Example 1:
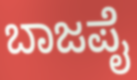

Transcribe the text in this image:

ಬಾಜಪೈ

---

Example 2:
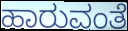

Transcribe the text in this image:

ಹಾರುವಂತೆ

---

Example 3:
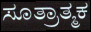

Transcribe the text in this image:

ಸೂತ್ರಾತ್ಮಕ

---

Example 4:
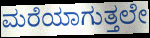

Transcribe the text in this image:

ಮರೆಯಾಗುತ್ತಲೇ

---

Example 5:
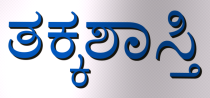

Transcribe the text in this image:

ತಕ್ಕಶಾಸ್ತಿ